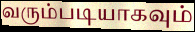
வரும்படியாகவும்